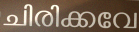
ചിരിക്കവേ